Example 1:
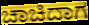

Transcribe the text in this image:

ಚಾಚಿದಾಗ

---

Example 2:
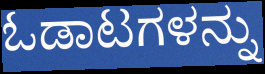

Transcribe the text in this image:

ಓಡಾಟಗಳನ್ನು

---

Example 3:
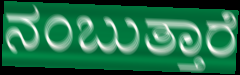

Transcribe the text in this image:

ನಂಬುತ್ತಾರೆ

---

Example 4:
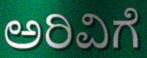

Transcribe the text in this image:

ಅರಿವಿಗೆ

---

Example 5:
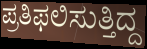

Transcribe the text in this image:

ಪ್ರತಿಫಲಿಸುತ್ತಿದ್ದ